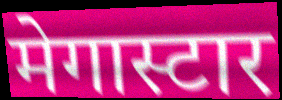
मेगास्टार